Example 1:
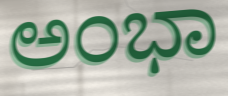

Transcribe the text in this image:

ಅಂಭಾ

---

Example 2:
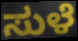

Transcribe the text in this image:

ಸುಳೆ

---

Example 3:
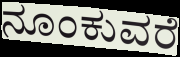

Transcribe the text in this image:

ನೂಂಕುವರೆ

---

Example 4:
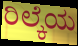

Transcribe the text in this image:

ರಿಲ್ಕೆಯ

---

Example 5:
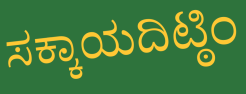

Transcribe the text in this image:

ಸಕ್ಕಾಯದಿಟ್ಠಿಂ